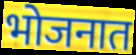
भोजनात